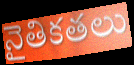
నైతికతలు